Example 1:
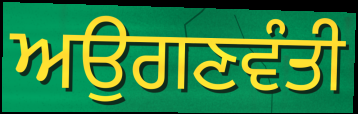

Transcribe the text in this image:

ਅਉਗਣਵੰਤੀ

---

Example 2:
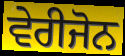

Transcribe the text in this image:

ਵੇਰੀਜੋਨ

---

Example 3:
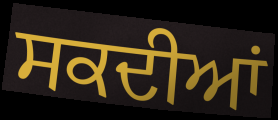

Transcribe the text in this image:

ਸਕਦੀਆਂ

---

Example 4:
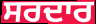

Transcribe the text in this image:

ਸਰਦਾਰ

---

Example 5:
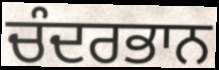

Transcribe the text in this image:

ਚੰਦਰਭਾਨ